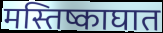
मस्तिष्काघात